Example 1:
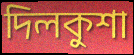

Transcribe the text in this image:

দিলকুশা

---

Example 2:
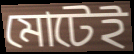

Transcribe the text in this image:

মোটেই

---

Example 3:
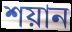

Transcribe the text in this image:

শয়ান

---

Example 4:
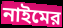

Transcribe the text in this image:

নাইমের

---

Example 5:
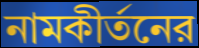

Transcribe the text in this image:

নামকীর্তনের